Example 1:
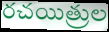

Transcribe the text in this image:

రచయిత్రుల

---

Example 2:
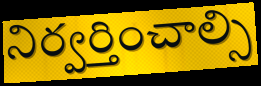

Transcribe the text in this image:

నిర్వర్తించాల్సి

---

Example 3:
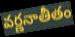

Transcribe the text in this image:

వర్ణనాతీతం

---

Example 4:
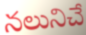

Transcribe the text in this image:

నలునిచే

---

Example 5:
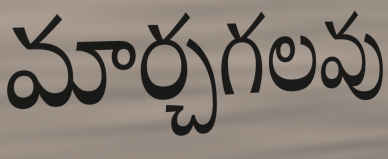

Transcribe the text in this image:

మార్చగలవు